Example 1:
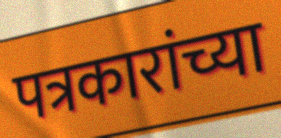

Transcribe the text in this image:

पत्रकारांच्या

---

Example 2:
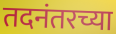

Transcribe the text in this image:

तदनंतरच्या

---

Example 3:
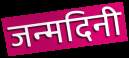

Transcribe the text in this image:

जन्मदिनी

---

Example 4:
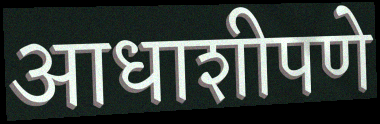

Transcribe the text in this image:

आधाशीपणे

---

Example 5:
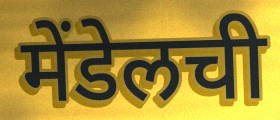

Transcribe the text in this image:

मेंडेलची